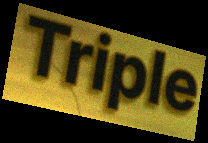
Triple